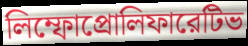
লিম্ফোপ্রোলিফারেটিভ